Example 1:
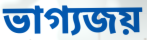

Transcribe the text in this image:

ভাগ্যজয়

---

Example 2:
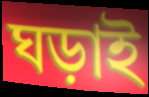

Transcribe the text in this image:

ঘড়াই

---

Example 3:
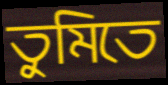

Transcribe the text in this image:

তুমিতে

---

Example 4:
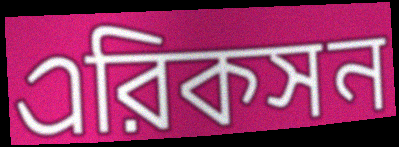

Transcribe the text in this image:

এরিকসন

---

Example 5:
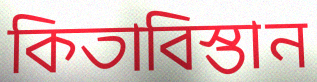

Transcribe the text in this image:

কিতাবিস্তান